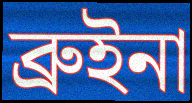
ব্রুইনা